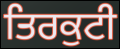
ਤਿਰਕੁਟੀ